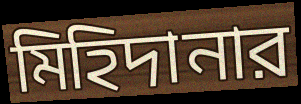
মিহিদানার